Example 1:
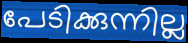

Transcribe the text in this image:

പേടിക്കുന്നില്ല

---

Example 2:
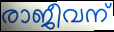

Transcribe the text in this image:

രാജീവന്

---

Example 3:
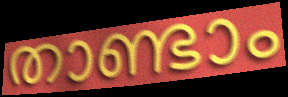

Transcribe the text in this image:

താണ്ടാം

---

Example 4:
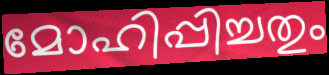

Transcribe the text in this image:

മോഹിപ്പിച്ചതും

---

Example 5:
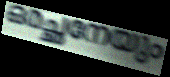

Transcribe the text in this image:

ഒരച്ഛനേയും